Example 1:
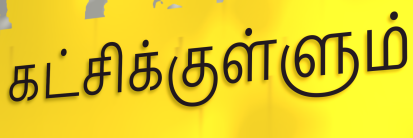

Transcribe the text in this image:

கட்சிக்குள்ளும்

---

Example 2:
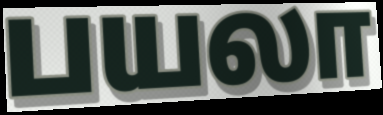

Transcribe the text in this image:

பயலா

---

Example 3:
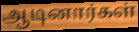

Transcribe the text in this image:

ஆடினார்கள்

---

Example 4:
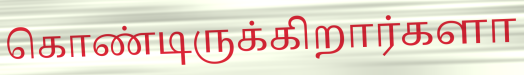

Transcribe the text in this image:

கொண்டிருக்கிறார்களா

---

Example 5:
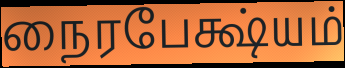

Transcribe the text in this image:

நைரபேக்ஷ்யம்